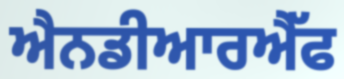
ਐਨਡੀਆਰਐੱਫ